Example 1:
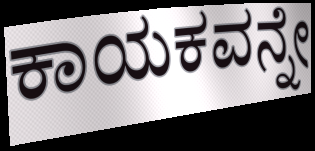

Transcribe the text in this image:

ಕಾಯಕವನ್ನೇ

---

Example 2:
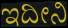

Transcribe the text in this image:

ಇದೀನಿ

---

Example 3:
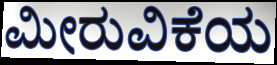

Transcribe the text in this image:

ಮೀರುವಿಕೆಯ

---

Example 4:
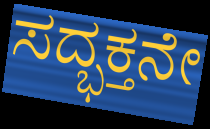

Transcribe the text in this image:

ಸದ್ಭಕ್ತನೇ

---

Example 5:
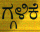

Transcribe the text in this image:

ಗ್ಗಳಿಕೆ